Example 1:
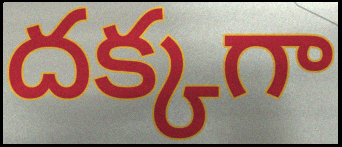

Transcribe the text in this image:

దక్కగా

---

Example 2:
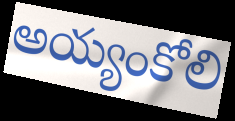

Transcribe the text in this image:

అయ్యంకోలి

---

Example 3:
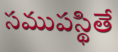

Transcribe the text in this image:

సముపస్థితే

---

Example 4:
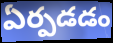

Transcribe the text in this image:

ఏర్పడడం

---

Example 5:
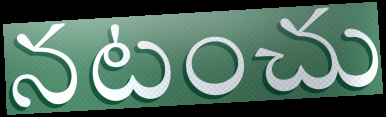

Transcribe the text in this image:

నటంచు